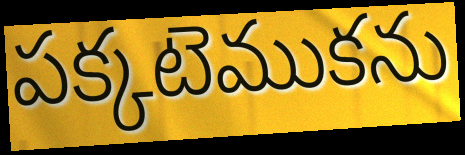
పక్కటెముకను